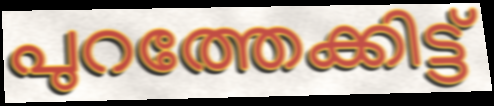
പുറത്തേക്കിട്ട്